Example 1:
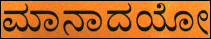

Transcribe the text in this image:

ಮಾನಾದಯೋ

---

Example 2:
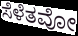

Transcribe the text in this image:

ಸೆಳೆತವೋ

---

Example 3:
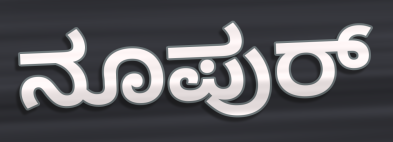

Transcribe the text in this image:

ನೂಪುರ್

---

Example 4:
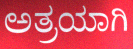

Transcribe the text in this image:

ಅತ್ರಯಾಗಿ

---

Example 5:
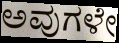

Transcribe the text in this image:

ಅವುಗಳೇ